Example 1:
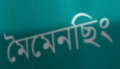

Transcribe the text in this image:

মৈমেনছিং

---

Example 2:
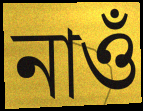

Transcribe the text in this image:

নাওঁ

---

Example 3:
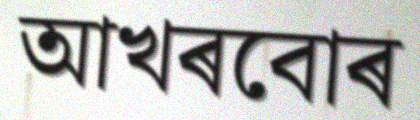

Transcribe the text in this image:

আখৰবোৰ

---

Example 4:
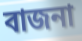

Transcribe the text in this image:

বাজনা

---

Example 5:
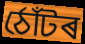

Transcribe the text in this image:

ঠোঁটৰ